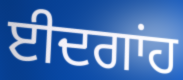
ਈਦਗਾਂਹ